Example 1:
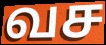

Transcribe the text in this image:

வச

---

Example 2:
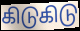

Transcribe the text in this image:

கிடுகிடு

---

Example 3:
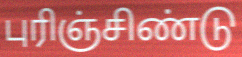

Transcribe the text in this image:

புரிஞ்சிண்டு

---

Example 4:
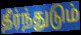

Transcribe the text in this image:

தீர்ந்துடும்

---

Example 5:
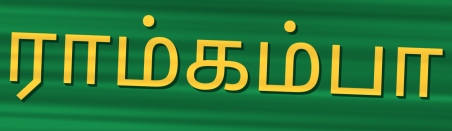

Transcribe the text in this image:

ராம்கம்பா